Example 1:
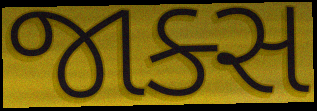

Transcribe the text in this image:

જાક્સ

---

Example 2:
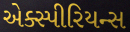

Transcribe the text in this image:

એક્સ્પીરિયન્સ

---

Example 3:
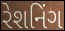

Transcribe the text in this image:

રેશનિંગ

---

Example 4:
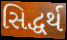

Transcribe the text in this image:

સિદ્ધર્થ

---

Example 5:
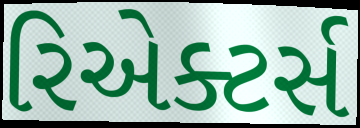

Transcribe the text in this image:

રિએક્ટર્સ